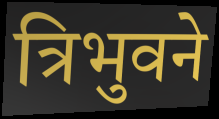
त्रिभुवने